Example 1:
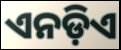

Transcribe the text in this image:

ଏନଡ଼ିଏ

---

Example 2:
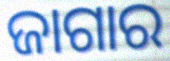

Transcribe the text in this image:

ଜାଗାର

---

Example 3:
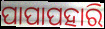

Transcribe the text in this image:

ପାପାପହାରି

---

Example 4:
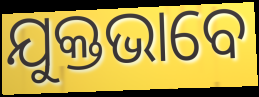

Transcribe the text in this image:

ଯୁକ୍ତଭାବେ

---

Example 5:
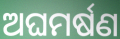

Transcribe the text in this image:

ଅଘମର୍ଷଣ